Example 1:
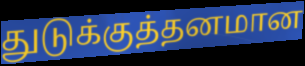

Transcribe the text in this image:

துடுக்குத்தனமான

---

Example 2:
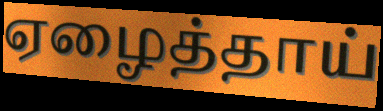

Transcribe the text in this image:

ஏழைத்தாய்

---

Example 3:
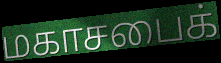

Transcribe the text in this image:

மகாசபைக்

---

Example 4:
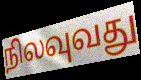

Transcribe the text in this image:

நிலவுவது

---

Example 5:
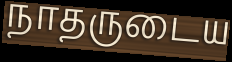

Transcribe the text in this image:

நாதருடைய